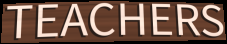
TEACHERS